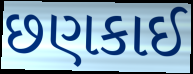
છણકાઈ